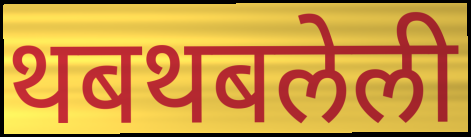
थबथबलेली